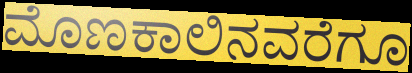
ಮೊಣಕಾಲಿನವರೆಗೂ